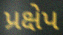
પ્રક્ષેપ